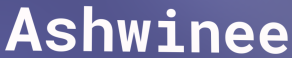
Ashwinee